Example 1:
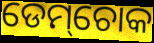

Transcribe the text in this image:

ଡେମ୍‌ଚୋକ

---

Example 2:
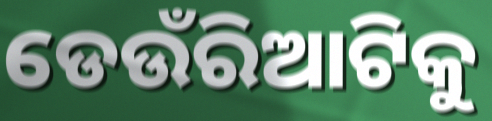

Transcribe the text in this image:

ଡେଉଁରିଆଟିକୁ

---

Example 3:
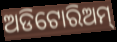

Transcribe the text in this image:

ଅଡିଟୋରିଅମ୍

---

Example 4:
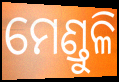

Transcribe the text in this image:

ମେଣ୍ଡୁଳି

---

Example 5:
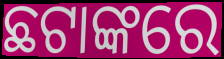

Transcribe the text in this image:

ଛଟାଙ୍କରେ